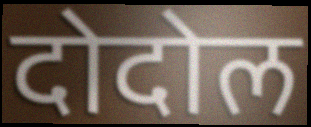
दोदोल